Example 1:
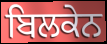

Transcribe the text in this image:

ਬਿਲਕੇਨ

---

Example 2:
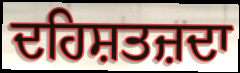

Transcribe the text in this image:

ਦਹਿਸ਼ਤਜ਼ਦਾ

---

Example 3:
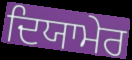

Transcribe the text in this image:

ਦਿਯਾਮੇਰ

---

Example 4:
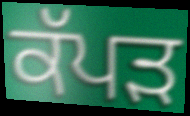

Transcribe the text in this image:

ਕੱਪੜ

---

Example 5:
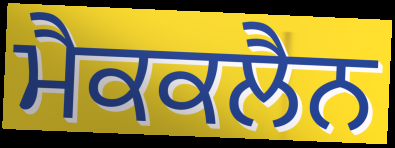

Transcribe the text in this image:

ਮੈਕਕਲੈਨ